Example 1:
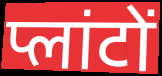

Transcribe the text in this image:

प्लांटों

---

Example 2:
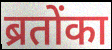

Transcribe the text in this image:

ब्रतोंका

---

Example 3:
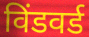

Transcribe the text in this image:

विंडवर्ड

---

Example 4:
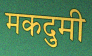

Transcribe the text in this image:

मकदुमी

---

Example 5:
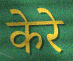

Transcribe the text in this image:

केरे